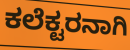
ಕಲೆಕ್ಟರನಾಗಿ